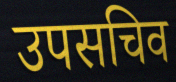
उपसचिव